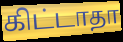
கிட்டாதா